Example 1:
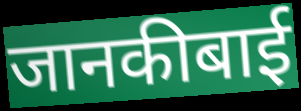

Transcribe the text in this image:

जानकीबाई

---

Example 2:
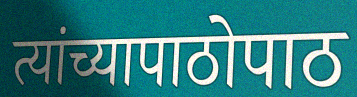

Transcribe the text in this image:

त्यांच्यापाठोपाठ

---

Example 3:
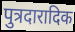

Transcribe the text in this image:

पुत्रदारादिक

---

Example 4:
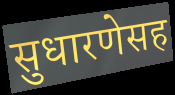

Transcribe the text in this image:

सुधारणेसह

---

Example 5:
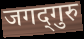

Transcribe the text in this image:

जगद्‍गुरु